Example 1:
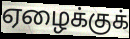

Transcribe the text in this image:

ஏழைக்குக்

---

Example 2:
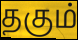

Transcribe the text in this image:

தகும்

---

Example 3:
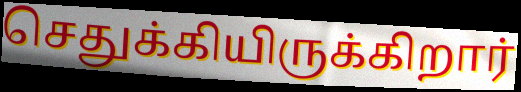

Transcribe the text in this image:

செதுக்கியிருக்கிறார்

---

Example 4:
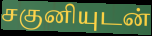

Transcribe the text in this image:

சகுனியுடன்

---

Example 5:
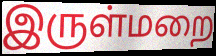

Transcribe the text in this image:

இருள்மறை